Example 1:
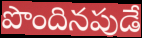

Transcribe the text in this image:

పొందినపుడే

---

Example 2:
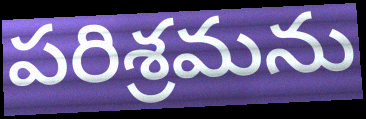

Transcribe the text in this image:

పరిశ్రమను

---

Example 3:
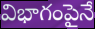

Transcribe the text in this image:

విభాగంపైనే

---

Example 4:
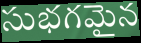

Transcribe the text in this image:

సుభగమైన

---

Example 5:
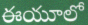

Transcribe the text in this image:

ఈయూలో